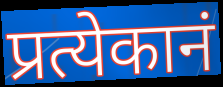
प्रत्येकानं